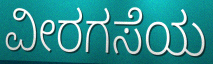
ವೀರಗಸೆಯ